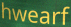
hwearf